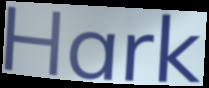
Hark